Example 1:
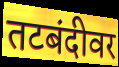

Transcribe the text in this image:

तटबंदीवर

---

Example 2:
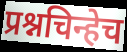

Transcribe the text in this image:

प्रश्नचिन्हेच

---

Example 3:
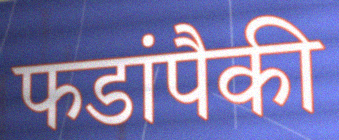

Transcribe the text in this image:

फडांपैकी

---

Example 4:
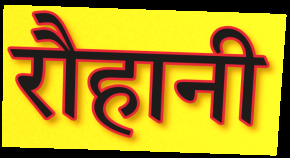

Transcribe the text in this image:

रौहानी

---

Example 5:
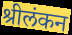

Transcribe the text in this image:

श्रीलंकन